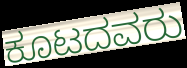
ಕೂಟದವರು